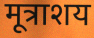
मूत्राशय